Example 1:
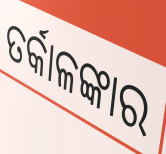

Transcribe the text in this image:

ତର୍କାଳଙ୍କାର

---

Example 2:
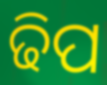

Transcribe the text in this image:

ଢିପ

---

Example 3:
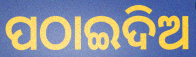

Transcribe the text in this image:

ପଠାଇଦିଅ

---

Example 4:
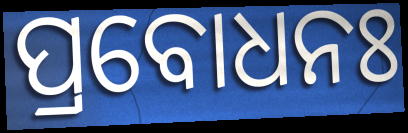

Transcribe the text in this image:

ପ୍ରବୋଧନଃ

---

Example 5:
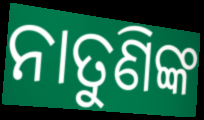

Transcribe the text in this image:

ନାତୁଣିଙ୍କ